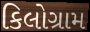
કિલોગ્રામ